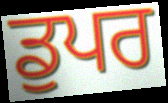
ਡੁਪਰ